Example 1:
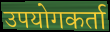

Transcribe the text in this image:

उपयोगकर्ता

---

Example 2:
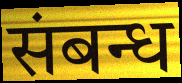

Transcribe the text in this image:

संबन्ध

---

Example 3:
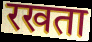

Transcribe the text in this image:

रखता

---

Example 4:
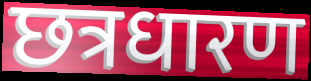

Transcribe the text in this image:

छत्रधारण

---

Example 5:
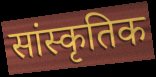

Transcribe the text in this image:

सांस्कृतिक